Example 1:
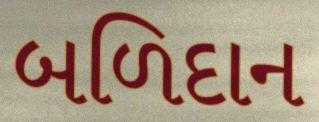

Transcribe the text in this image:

બળિદાન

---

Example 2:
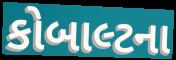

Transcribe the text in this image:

કોબાલ્ટના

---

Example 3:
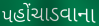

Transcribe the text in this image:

પહોંચાડવાના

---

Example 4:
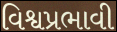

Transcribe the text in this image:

વિશ્વપ્રભાવી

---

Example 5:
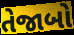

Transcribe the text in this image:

તેજાબો